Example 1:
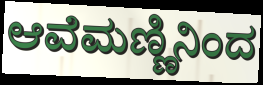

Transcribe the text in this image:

ಆವೆಮಣ್ಣಿನಿಂದ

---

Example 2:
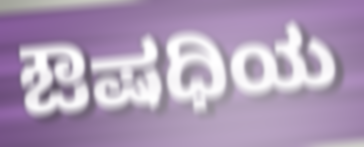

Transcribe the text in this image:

ಔಷಧಿಯ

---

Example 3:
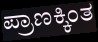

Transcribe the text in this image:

ಪ್ರಾಣಕ್ಕಿಂತ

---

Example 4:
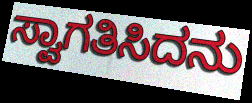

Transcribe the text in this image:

ಸ್ವಾಗತಿಸಿದನು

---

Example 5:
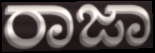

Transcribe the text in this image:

ರಾಜಾ